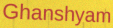
Ghanshyam